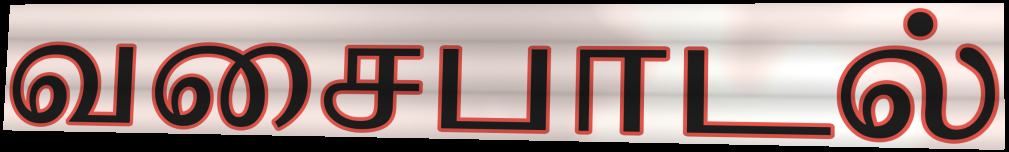
வசைபாடல்